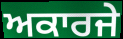
ਅਕਾਰਜੇ